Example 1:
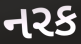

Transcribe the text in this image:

નરક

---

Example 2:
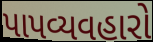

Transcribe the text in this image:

પાપવ્યવહારો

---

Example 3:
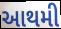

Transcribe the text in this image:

આથમી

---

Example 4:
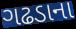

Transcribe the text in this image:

ગઢડાના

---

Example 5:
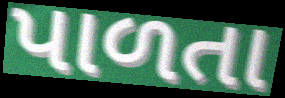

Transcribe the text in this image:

પાળતા